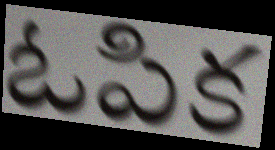
ఓపిక